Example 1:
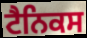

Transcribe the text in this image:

ਟੈਨਿਕਸ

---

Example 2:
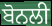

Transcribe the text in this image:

ਬੋਨਲੀ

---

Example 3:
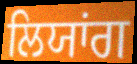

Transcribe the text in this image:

ਲਿਯਾਂਗ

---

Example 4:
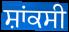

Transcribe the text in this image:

ਸ਼ਾਂਕਸੀ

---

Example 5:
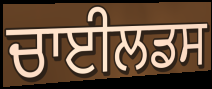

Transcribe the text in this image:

ਚਾਈਲਡਸ